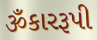
ૐકારરૂપી